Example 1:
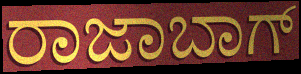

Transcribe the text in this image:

ರಾಜಾಬಾಗ್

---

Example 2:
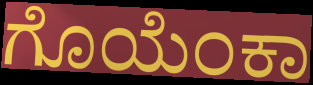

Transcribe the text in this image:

ಗೊಯೆಂಕಾ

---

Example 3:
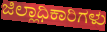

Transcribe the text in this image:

ಜಿಲ್ಲಾಧಿಕಾರಿಗಳು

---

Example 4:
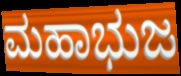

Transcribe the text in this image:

ಮಹಾಭುಜ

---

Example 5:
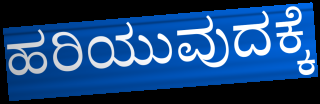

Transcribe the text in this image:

ಹರಿಯುವುದಕ್ಕೆ